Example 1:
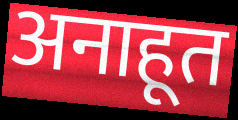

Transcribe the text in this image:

अनाहूत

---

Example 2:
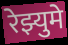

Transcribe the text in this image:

रेझ्युमे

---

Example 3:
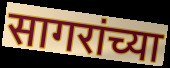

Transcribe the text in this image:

सागरांच्या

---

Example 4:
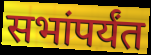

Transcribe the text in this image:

सभांपर्यंत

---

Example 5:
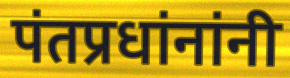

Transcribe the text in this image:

पंतप्रधांनांनी